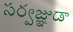
సర్వజ్ఞుడా